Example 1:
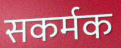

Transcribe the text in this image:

सकर्मक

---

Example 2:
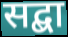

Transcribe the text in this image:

सद्बा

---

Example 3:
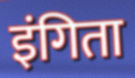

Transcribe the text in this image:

इंगिता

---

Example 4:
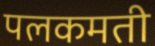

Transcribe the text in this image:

पलकमती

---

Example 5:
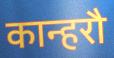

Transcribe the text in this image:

कान्हरौ